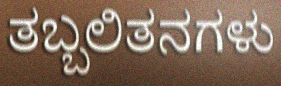
ತಬ್ಬಲಿತನಗಳು